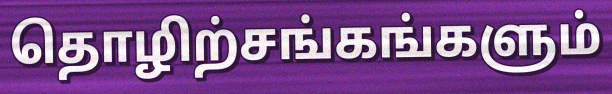
தொழிற்சங்கங்களும்